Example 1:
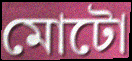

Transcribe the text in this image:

মোটো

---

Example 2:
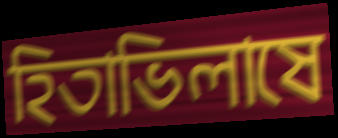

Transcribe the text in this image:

হিতাভিলাষে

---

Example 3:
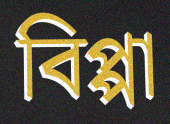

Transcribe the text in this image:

বিপ্পা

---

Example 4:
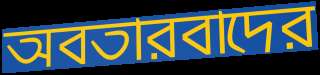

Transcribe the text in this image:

অবতারবাদের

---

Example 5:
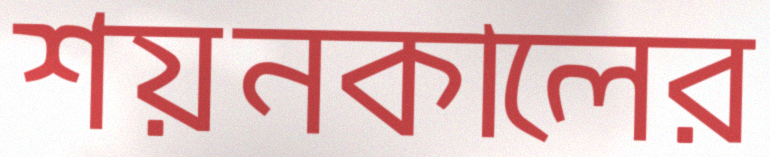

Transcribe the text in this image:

শয়নকালের